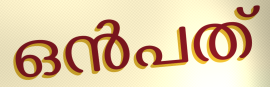
ഒൻപത്